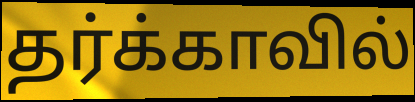
தர்க்காவில்